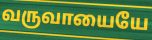
வருவாயையே